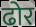
ढोर